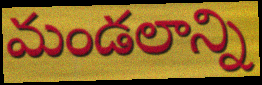
మండలాన్ని